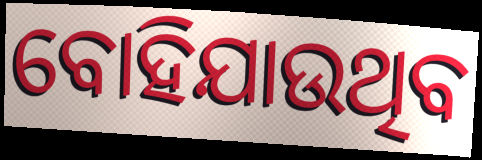
ବୋହିଯାଉଥିବ